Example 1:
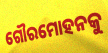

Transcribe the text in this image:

ଗୌରମୋହନକୁ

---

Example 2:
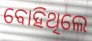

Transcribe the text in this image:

ବୋହିଥିଲେ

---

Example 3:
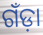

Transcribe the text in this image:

ଗଁଡ଼ା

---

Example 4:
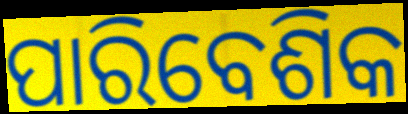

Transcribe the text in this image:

ପାରିବେଶିକ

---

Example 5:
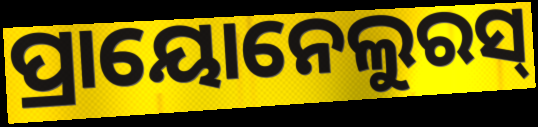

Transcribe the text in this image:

ପ୍ରାୟୋନେଲୁରସ୍